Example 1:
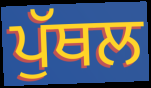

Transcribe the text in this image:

ਪੁੱਥਲ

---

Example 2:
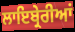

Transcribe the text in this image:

ਲਾਇਬ੍ਰੇਰੀਆਂ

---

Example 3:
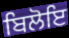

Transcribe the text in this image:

ਬਿਲੋਇ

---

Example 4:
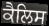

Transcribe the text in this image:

ਕੈਲਿਸ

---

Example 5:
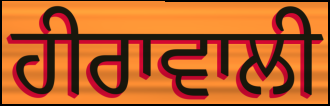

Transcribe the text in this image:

ਹੀਰਾਵਾਲੀ